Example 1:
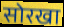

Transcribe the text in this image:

सोरखा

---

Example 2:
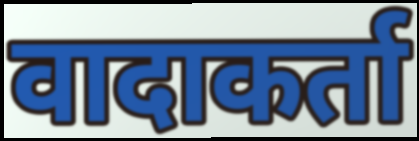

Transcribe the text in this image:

वादाकर्ता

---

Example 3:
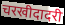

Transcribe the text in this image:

चरखीदादरी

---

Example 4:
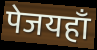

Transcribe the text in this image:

पेजयहाँ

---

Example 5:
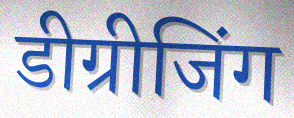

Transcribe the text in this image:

डीग्रीजिंग